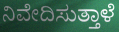
ನಿವೇದಿಸುತ್ತಾಳೆ